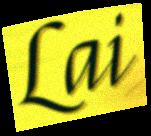
Lai